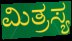
ಮಿತ್ರಸ್ಯ